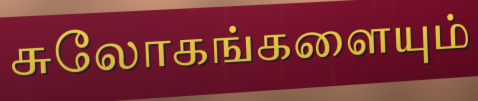
சுலோகங்களையும்